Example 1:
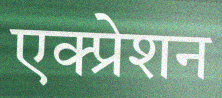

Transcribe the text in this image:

एक्प्रेशन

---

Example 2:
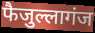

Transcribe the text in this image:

फैजुल्लागंज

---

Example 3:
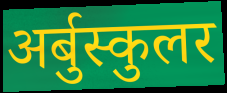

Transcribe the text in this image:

अर्बुस्कुलर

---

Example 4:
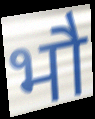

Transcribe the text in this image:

भौ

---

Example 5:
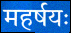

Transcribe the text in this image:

महर्षयः